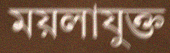
ময়লাযুক্ত